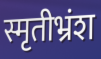
स्मृतीभ्रंश